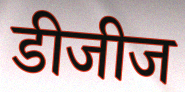
डीजीज